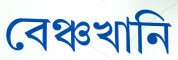
বেঞ্চখানি